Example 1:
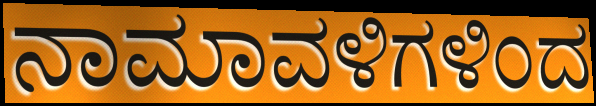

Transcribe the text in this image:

ನಾಮಾವಳಿಗಳಿಂದ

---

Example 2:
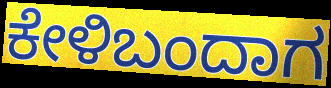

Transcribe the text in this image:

ಕೇಳಿಬಂದಾಗ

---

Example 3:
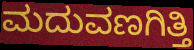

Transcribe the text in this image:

ಮದುವಣಗಿತ್ತಿ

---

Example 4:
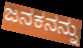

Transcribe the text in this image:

ಜನಕನನ್ನು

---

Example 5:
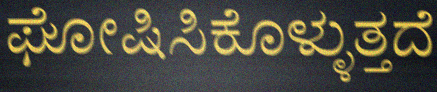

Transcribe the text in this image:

ಘೋಷಿಸಿಕೊಳ್ಳುತ್ತದೆ